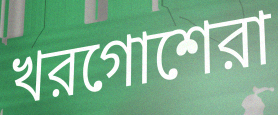
খরগোশেরা